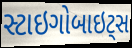
સ્ટાઇગોબાઇટ્સ